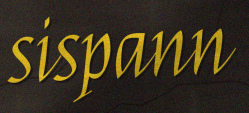
sispann